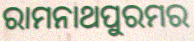
ରାମନାଥପୁରମର